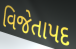
વિજેતાપદ